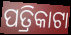
ପତ୍ରିକାଟା